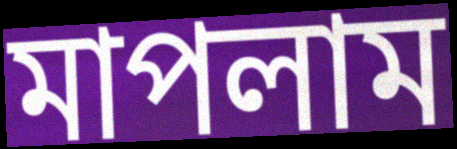
মাপলাম